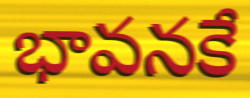
భావనకే